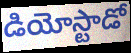
డియోస్టాడో